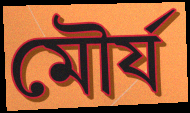
মৌৰ্য